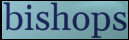
bishops